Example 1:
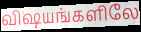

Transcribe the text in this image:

விஷயங்களிலே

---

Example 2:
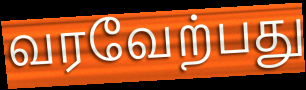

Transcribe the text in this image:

வரவேற்பது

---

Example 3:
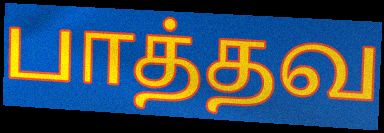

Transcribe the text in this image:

பாத்தவ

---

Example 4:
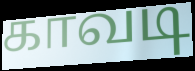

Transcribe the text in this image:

காவடி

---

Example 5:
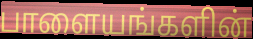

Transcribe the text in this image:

பாளையங்களின்